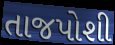
તાજપોશી